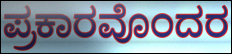
ಪ್ರಕಾರವೊಂದರ